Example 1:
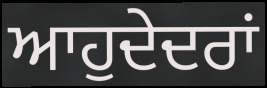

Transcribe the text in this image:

ਆਹੁਦੇਦਰਾਂ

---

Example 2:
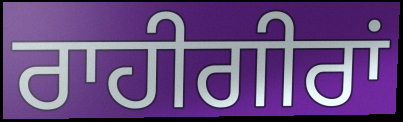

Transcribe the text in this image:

ਰਾਹੀਗੀਰਾਂ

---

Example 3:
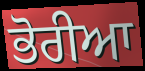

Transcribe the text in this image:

ਭੋਰੀਆ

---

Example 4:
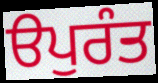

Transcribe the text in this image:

ੳਪੁਰੰਤ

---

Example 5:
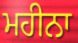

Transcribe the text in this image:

ਮਹੀਨਾ